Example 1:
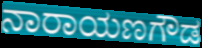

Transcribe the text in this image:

ನಾರಾಯಣಗೌಡ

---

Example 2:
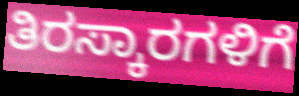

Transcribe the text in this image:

ತಿರಸ್ಕಾರಗಳಿಗೆ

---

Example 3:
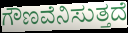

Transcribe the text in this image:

ಗೌಣವೆನಿಸುತ್ತದೆ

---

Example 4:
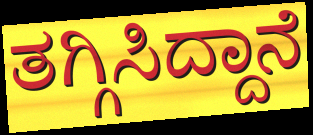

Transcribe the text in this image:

ತಗ್ಗಿಸಿದ್ದಾನೆ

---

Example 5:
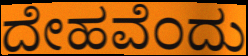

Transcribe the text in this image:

ದೇಹವೆಂದು